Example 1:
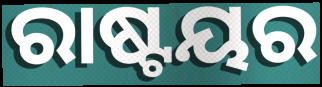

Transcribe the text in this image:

ରାଷ୍ଟୟର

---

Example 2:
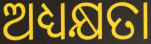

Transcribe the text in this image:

ଅଧ୍ୟକ୍ଷତା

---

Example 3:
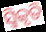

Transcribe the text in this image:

ସ୍ଵିକୃତି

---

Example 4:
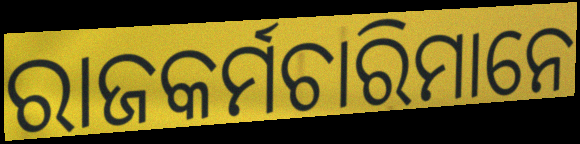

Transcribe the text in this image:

ରାଜକର୍ମଚାରିମାନେ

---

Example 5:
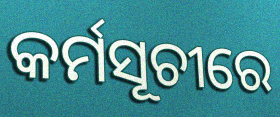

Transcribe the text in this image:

କର୍ମସୂଚୀରେ